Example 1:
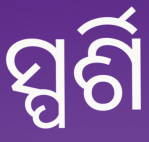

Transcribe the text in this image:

ସ୍ପର୍ଶି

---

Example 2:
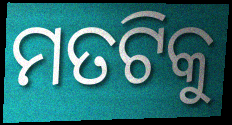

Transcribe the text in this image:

ମତଟିକୁ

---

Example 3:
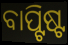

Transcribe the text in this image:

ବାପ୍ଟିଷ୍ଟ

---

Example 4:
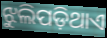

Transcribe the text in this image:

ଝୁଲିପଡ଼ିଥାଏ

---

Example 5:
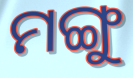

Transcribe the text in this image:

ମଙ୍ଗୁ